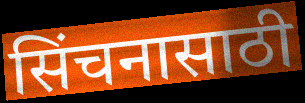
सिंचनासाठी